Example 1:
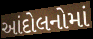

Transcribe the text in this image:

આંદોલનોમાં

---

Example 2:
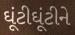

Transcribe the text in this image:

ઘૂંટીઘૂંટીને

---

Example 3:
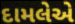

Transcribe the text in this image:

દામલેએ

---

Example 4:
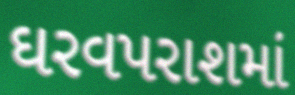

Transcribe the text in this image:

ઘરવપરાશમાં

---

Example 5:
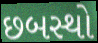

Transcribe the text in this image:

છબસ્થો